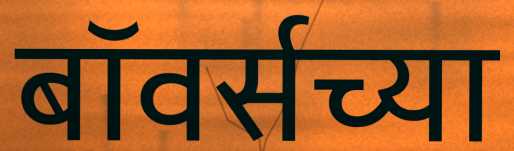
बॉवर्सच्या